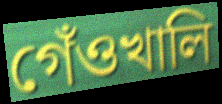
গেঁওখালি